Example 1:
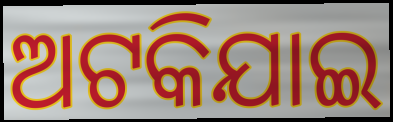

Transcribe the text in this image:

ଅଟକିଯାଇ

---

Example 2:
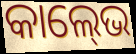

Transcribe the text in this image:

କାଲ୍‍ଭେ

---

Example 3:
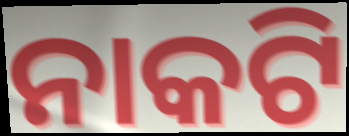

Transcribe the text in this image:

ନାକଟି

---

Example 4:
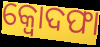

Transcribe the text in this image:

କ୍ବୋଦଫା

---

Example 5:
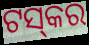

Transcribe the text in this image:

ଟସ୍‍କର